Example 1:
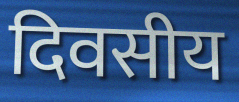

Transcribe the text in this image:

दिवसीय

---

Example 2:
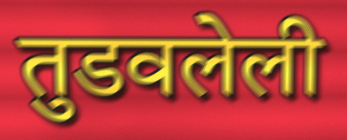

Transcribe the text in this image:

तुडवलेली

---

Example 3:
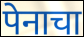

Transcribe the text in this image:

पेनाचा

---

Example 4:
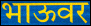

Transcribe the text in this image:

भाऊवर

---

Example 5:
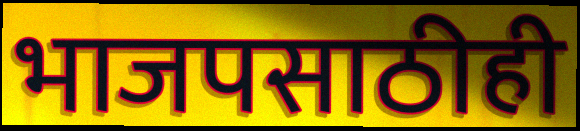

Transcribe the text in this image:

भाजपसाठीही